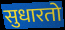
सुधारतो